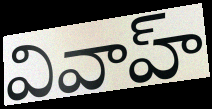
వివాహ్